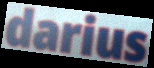
darius